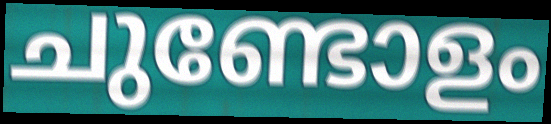
ചുണ്ടോളം